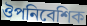
ঔপনিবেশিক